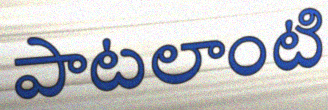
పాటలాంటి